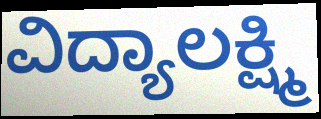
ವಿದ್ಯಾಲಕ್ಷ್ಮಿ